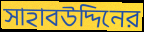
সাহাবউদ্দিনের